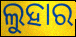
ଲୁହାର